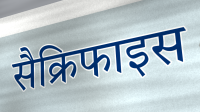
सैक्रिफाइस